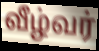
வீழ்வர்